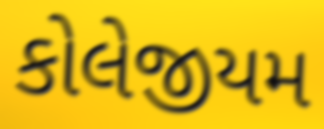
કોલેજીયમ